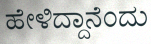
ಹೇಳಿದ್ದಾನೆಂದು